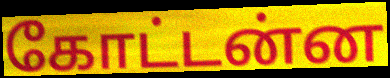
கோட்டன்ன